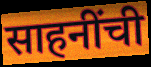
साहनींची